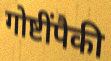
गोष्टींपैकी